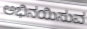
ಅಭಿನಯಿಸುವ